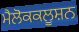
ਮੈਲੋਕਕਲੂਸ਼ਨ